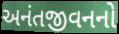
અનંતજીવનનો